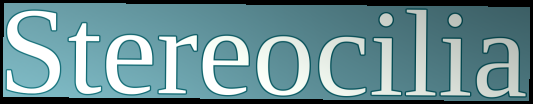
Stereocilia